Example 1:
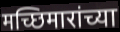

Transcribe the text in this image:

मच्छिमारांच्या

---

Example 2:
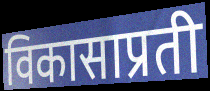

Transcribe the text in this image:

विकासाप्रती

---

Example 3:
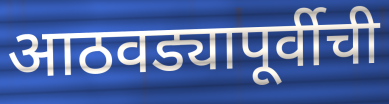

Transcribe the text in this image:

आठवड्यापूर्वीची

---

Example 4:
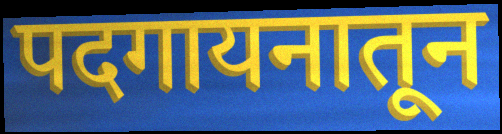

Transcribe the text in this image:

पदगायनातून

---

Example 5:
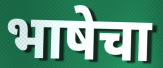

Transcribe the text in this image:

भाषेचा